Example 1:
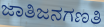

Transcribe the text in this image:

ಜಾತಿಜನಗಣತಿ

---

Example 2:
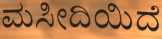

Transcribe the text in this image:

ಮಸೀದಿಯಿದೆ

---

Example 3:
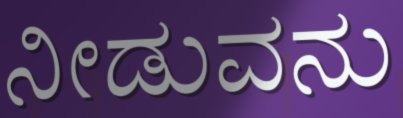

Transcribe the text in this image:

ನೀಡುವನು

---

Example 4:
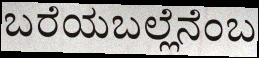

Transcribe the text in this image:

ಬರೆಯಬಲ್ಲೆನೆಂಬ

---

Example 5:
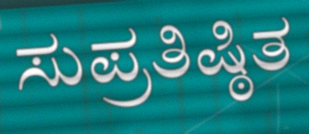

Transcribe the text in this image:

ಸುಪ್ರತಿಷ್ಠಿತ